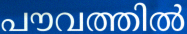
പൗവത്തിൽ